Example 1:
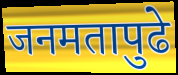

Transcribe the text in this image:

जनमतापुढे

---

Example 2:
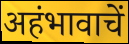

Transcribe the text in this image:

अहंभावाचें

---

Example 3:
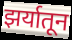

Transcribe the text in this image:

झर्यातून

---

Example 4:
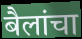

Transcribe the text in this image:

बैलांचा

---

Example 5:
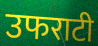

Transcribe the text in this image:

उफराटी